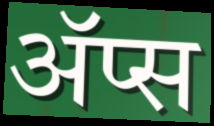
ॲप्स